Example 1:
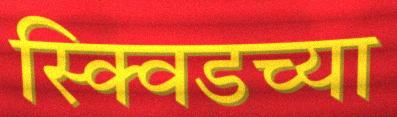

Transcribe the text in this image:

स्क्विडच्या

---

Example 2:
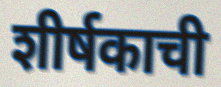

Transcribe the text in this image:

शीर्षकाची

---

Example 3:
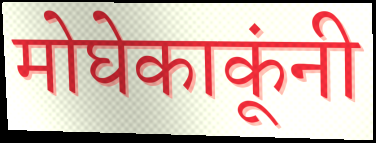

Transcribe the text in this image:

मोघेकाकूंनी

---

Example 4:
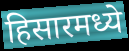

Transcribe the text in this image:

हिसारमध्ये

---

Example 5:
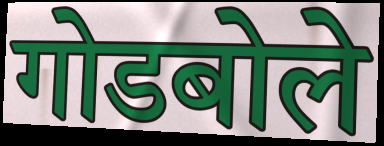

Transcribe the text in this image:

गोडबोले